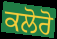
ਕਲੋਰੋ